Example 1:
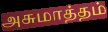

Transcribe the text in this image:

அசுமாத்தம்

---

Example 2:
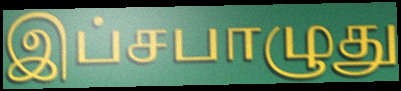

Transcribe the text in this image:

இப்சபாழுது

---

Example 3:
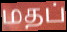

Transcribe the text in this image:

மதப்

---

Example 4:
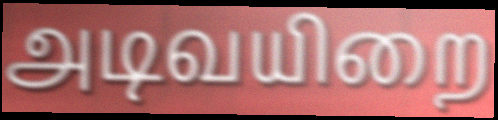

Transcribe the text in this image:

அடிவயிறை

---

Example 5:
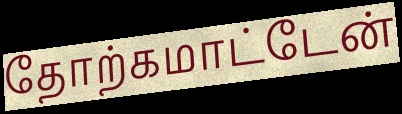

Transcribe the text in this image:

தோற்கமாட்டேன்